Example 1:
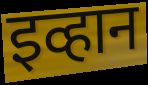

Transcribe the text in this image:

इव्हान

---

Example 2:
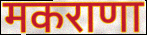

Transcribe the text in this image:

मकराणा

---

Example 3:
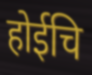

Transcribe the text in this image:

होईचि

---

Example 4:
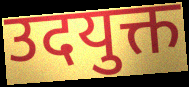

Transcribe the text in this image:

उदयुक्त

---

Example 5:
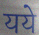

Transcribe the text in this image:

यये